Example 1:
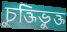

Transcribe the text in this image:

চুক্তিভুক্ত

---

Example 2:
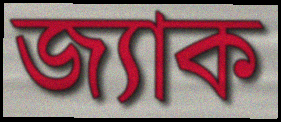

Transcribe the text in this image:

জ্যাক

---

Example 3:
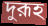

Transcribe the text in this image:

দুরূহ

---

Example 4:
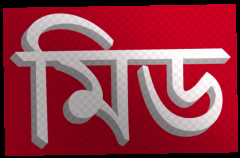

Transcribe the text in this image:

মিড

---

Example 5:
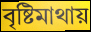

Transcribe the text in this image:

বৃষ্টিমাথায়